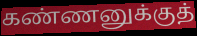
கண்ணனுக்குத்